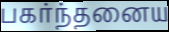
பகர்ந்தனைய